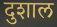
दुशाल